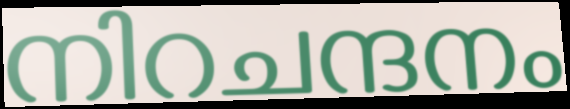
നിറചന്ദനം